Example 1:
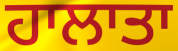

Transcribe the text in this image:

ਹਾਲਾਤਾ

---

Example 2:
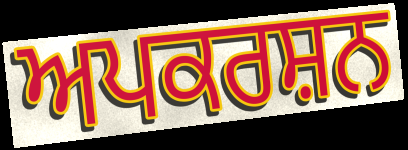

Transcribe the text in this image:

ਅਪਕਰਸ਼ਨ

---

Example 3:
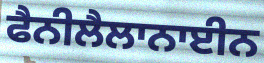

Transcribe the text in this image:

ਫੈਨੀਲੈਲਾਨਾਈਨ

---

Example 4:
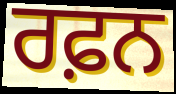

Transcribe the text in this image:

ਰਫ਼ਨ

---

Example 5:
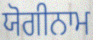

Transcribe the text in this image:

ਯੋਗੀਨਾਮ